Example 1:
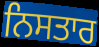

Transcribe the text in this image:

ਨਿਸਤਾਰ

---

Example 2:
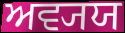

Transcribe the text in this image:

ਅਵ੍ਯਯ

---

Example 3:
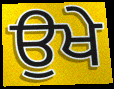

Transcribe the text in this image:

ਉਖੇ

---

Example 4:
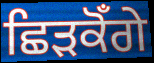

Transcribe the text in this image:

ਛਿੜਕੋਁਗੇ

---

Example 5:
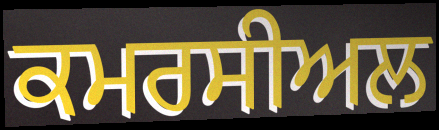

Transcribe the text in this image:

ਕਮਰਸੀਅਲ